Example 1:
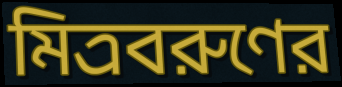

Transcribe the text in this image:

মিত্রবরুণের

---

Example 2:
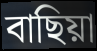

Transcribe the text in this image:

বাছিয়া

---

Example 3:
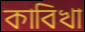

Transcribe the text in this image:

কাবিখা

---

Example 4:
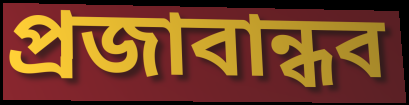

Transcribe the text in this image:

প্রজাবান্ধব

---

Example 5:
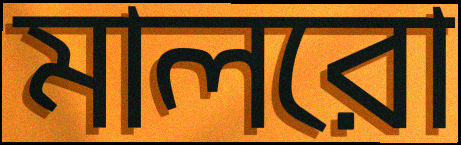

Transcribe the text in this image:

মালরো